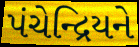
પંચેન્દ્રિયને